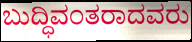
ಬುದ್ಧಿವಂತರಾದವರು